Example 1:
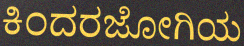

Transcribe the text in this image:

ಕಿಂದರಜೋಗಿಯ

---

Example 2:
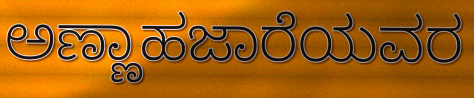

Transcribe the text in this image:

ಅಣ್ಣಾಹಜಾರೆಯವರ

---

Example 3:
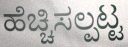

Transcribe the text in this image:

ಹೆಚ್ಚಿಸಲ್ಪಟ್ಟ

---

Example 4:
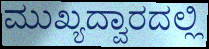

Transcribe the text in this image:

ಮುಖ್ಯದ್ವಾರದಲ್ಲಿ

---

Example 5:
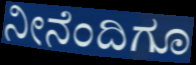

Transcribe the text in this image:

ನೀನೆಂದಿಗೂ